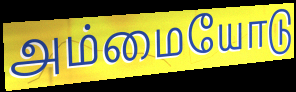
அம்மையோடு